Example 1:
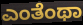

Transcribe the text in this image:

ಎಂತೆಂಥಾ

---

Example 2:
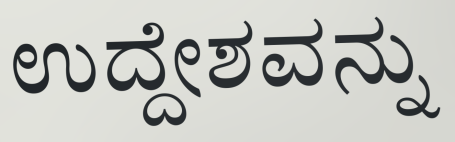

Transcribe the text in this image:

ಉದ್ದೇಶವನ್ನು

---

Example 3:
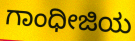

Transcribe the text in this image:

ಗಾಂಧೀಜಿಯ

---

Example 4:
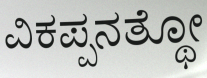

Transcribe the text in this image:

ವಿಕಪ್ಪನತ್ಥೋ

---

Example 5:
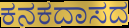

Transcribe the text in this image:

ಕನಕದಾಸದ